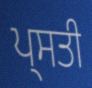
ਪ੍ਸਤੀ